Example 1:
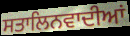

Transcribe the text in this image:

ਸਤਾਲਿਨਵਾਦੀਆਂ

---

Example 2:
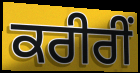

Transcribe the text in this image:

ਕਰੀਰੀਂ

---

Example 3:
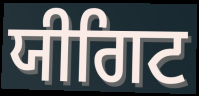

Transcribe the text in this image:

ਯੀਗਿਟ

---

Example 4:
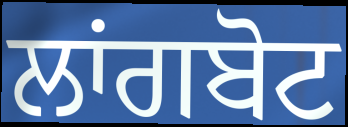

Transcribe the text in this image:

ਲਾਂਗਬੋਟ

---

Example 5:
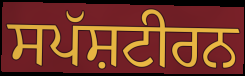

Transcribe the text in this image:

ਸਪੱਸ਼ਟੀਰਨ